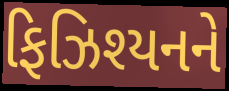
ફિઝિશ્યનને